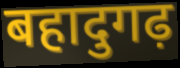
बहादुगढ़